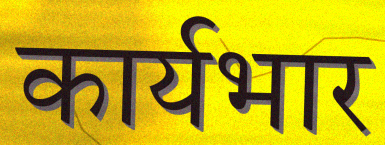
कार्यभार